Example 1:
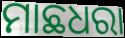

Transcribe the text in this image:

ମାଛଧରା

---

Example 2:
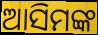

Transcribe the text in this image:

ଆସିମଙ୍କ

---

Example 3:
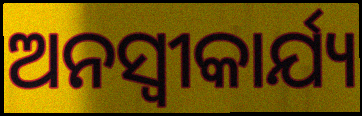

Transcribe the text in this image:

ଅନସ୍ୱୀକାର୍ଯ୍ୟ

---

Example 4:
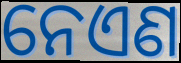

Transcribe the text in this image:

ନେଏଣ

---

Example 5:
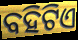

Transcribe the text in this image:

ବହିଟିଏ